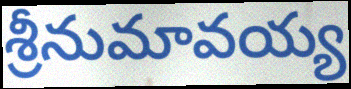
శ్రీనుమావయ్య